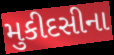
મુકીદસીના